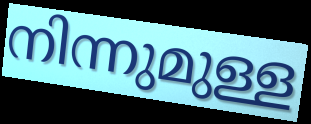
നിന്നുമുള്ള